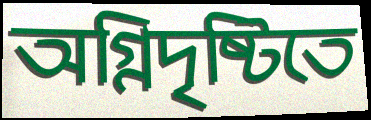
অগ্নিদৃষ্টিতে